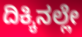
ದಿಕ್ಕಿನಲ್ಲೇ